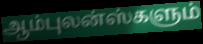
ஆம்புலன்ஸ்களும்